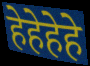
हेहेहेहे